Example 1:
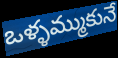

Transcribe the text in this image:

ఒళ్ళమ్ముకునే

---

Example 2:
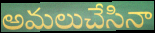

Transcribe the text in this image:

అమలుచేసినా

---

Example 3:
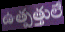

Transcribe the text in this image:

ఉత్పత్తులే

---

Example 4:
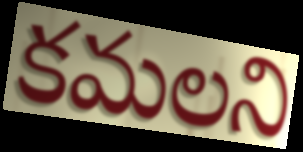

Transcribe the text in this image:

కమలని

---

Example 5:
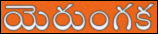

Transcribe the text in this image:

యెరుంగక